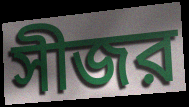
সীজর